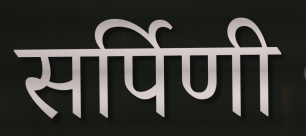
सर्पिणी